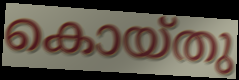
കൊയ്തു